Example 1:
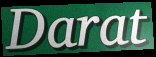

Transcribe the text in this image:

Darat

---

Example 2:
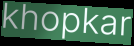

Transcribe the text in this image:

khopkar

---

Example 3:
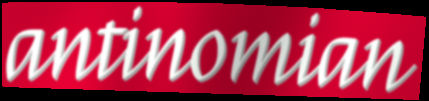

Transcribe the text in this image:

antinomian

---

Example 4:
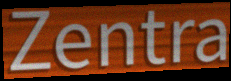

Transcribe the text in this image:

Zentra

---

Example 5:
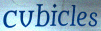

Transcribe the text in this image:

cubicles